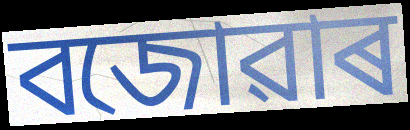
বজোৱাৰ